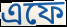
এফে